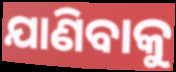
ଯାଣିବାକୁ